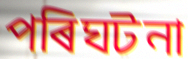
পৰিঘটনা